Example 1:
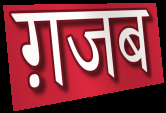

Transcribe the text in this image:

ग़जब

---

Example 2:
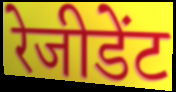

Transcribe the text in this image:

रेजीडेंट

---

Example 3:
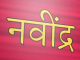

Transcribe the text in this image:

नवींद्र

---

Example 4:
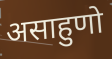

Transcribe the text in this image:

असाहुणो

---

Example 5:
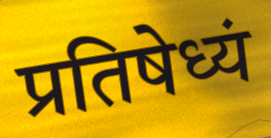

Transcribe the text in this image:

प्रतिषेध्यं